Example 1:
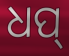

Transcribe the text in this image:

ଧପ୍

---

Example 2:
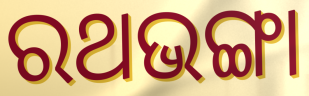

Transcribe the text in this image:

ରଥଭଙ୍ଗା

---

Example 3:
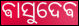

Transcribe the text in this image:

ଵାସୁଦେଵ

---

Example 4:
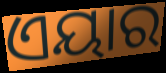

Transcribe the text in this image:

ଏୟାର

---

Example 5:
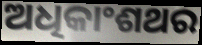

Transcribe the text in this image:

ଅଧିକାଂଶଥର